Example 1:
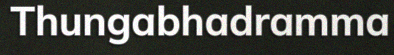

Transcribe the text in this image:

Thungabhadramma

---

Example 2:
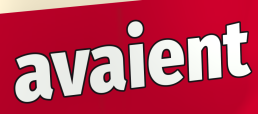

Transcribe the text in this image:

avaient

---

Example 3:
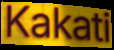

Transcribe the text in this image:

Kakati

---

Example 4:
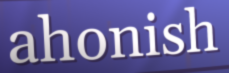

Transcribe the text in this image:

ahonish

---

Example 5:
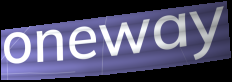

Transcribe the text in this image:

oneway